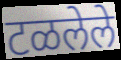
टळलेले